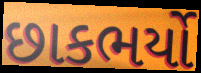
છાકભર્યો